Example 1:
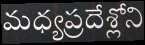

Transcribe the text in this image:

మధ్యప్రదేశ్లోని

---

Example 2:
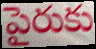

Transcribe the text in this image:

పైరుకు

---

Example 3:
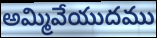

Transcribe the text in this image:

అమ్మివేయుదము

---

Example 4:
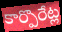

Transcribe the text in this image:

కార్పొరేట్ల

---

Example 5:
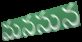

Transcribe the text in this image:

మనసున